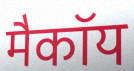
मैकॉय